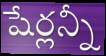
షేర్లన్నీ